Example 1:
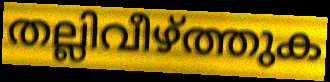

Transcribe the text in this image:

തല്ലിവീഴ്ത്തുക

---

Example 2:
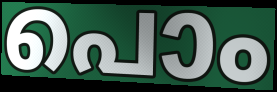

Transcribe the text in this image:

പൊം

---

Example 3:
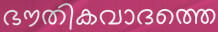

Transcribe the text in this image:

ഭൗതികവാദത്തെ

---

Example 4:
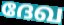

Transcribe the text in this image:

ദേഖ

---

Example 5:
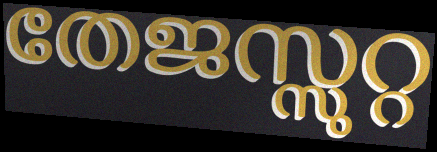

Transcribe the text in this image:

തേജസ്സുറ്റ